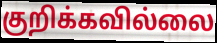
குறிக்கவில்லை